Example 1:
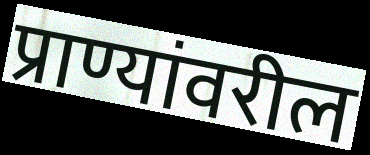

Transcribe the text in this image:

प्राण्यांवरील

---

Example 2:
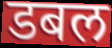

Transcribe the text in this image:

डबल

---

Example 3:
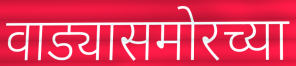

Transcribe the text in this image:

वाड्यासमोरच्या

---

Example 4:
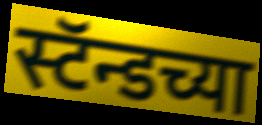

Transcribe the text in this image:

स्टॅन्डच्या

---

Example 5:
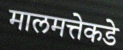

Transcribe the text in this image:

मालमत्तेकडे